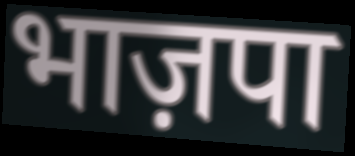
भाज़पा